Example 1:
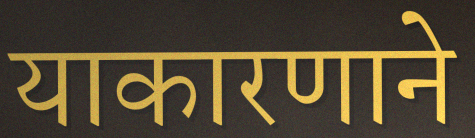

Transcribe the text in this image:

याकारणाने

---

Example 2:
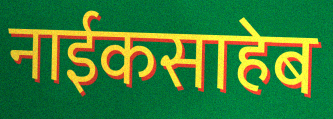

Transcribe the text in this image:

नाईकसाहेब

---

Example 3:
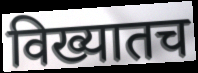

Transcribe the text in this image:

विख्यातच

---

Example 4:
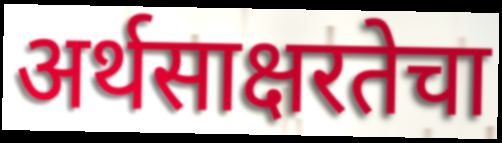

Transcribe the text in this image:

अर्थसाक्षरतेचा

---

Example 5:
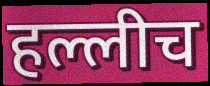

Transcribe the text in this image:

हल्लीच